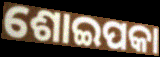
ଶୋଇପକା